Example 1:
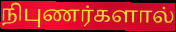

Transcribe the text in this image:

நிபுணர்களால்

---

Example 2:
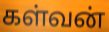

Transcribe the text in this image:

கள்வன்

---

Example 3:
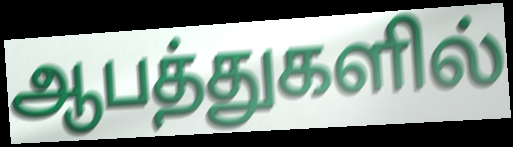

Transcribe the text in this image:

ஆபத்துகளில்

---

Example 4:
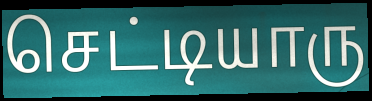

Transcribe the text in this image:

செட்டியாரு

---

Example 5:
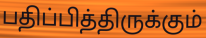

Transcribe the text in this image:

பதிப்பித்திருக்கும்